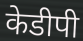
केडीपी